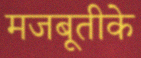
मजबूतीके